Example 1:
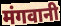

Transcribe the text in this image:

मंगवानी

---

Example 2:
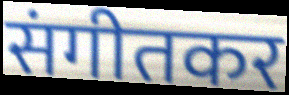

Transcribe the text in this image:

संगीतकर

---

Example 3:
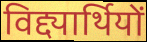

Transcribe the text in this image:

विद्द्यार्थियों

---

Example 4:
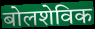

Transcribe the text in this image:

बोलशेविक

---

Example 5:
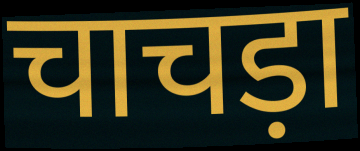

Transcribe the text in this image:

चाचड़ा